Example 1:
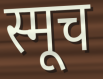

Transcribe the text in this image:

स्मूच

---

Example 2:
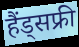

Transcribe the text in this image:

हैंड्सफ्री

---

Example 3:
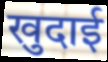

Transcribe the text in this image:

खुदाई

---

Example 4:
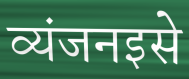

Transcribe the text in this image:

व्यंजनइसे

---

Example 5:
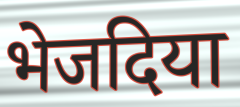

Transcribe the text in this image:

भेजदिया